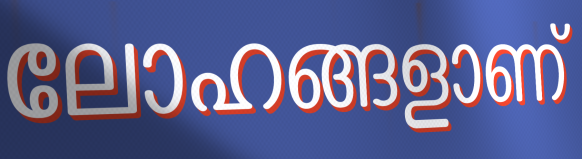
ലോഹങ്ങളാണ്